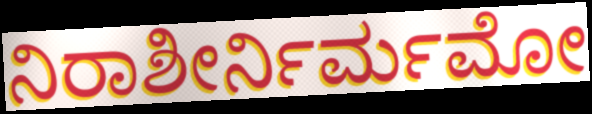
ನಿರಾಶೀರ್ನಿರ್ಮಮೋ